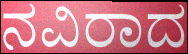
ನವಿರಾದ